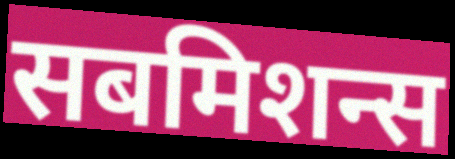
सबमिशन्स